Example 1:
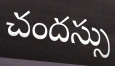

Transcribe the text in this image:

చందస్సు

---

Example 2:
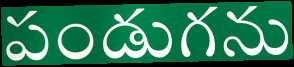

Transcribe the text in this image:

పండుగను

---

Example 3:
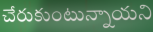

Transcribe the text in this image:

చేరుకుంటున్నాయని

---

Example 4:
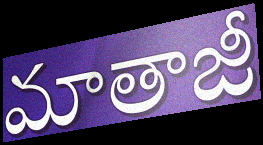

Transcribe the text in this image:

మాతాజీ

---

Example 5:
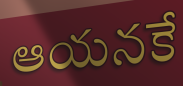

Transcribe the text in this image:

ఆయనకే